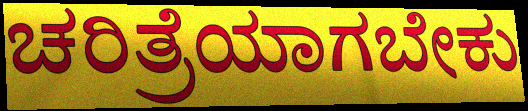
ಚರಿತ್ರೆಯಾಗಬೇಕು